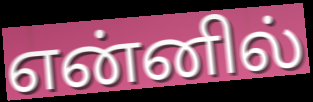
என்னில்